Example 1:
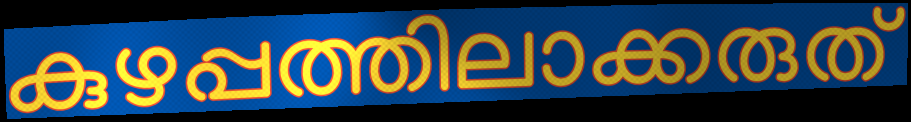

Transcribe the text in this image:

കുഴപ്പത്തിലാക്കരുത്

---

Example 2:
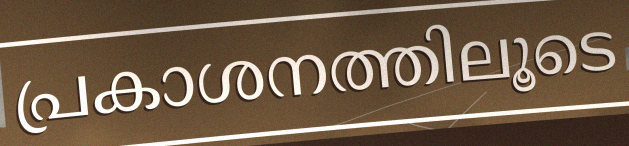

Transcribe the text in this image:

പ്രകാശനത്തിലൂടെ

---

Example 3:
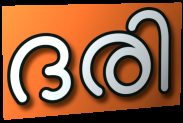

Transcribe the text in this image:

ദരി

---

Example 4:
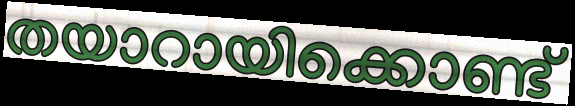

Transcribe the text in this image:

തയാറായിക്കൊണ്ട്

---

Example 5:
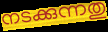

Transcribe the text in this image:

നടക്കുന്നതു